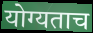
योग्यताच